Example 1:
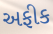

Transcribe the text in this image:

અફીક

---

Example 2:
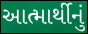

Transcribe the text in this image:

આત્માર્થીનું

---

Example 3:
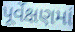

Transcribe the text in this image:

પૂર્વેક્ષણમાં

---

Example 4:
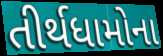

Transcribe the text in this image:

તીર્થધામોના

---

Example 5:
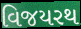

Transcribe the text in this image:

વિજયરથ